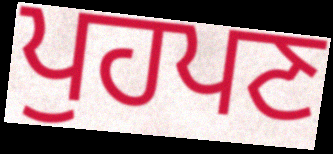
ਪੁਹਪਣ